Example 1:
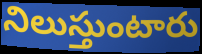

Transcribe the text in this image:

నిలుస్తుంటారు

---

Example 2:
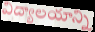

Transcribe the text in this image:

విద్యాలయాన్ని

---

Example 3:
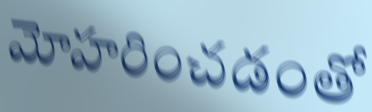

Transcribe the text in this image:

మోహరించడంతో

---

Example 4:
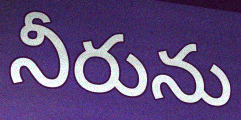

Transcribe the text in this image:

నీరును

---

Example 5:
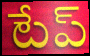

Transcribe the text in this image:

టేప్